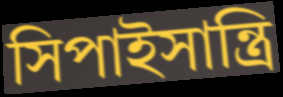
সিপাইসান্ত্রি